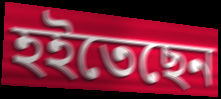
হইতেছেন